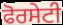
ਫੋਰਸੇਟੀ